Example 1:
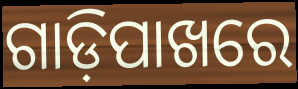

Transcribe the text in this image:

ଗାଡ଼ିପାଖରେ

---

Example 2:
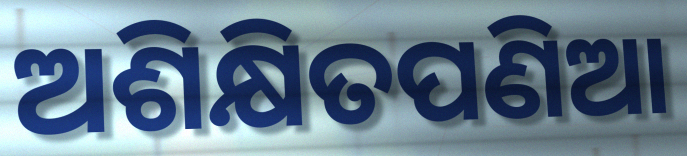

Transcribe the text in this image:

ଅଶିକ୍ଷିତପଣିଆ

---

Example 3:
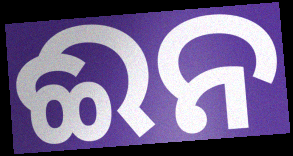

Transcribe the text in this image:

ଈନ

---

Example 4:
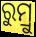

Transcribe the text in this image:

ରୁମ୍ରୁ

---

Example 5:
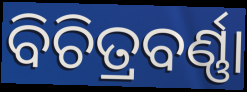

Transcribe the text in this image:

ବିଚିତ୍ରବର୍ଣ୍ଣା